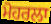
ਮੋਹਰਲਾ